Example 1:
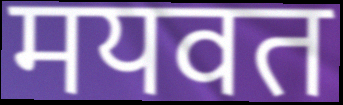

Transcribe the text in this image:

मयवत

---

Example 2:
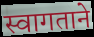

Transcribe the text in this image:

स्वागताने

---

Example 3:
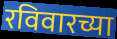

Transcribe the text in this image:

रविवारच्या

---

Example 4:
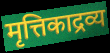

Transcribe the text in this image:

मृत्तिकाद्रव्य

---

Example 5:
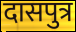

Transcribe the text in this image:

दासपुत्र